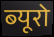
ब्‍यूरो